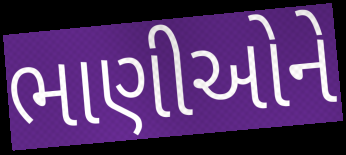
ભાણીઓને